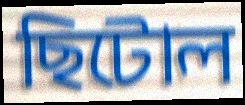
ছিটোল